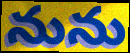
నును